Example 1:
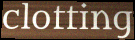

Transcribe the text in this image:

clotting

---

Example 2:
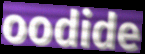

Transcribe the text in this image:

oodide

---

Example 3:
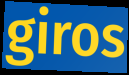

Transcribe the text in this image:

giros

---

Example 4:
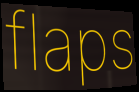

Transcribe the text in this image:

flaps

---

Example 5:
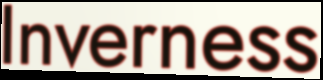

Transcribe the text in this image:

Inverness